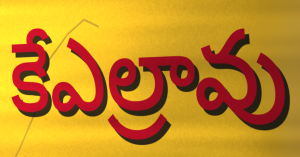
కేఎల్రావు